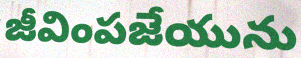
జీవింపజేయును